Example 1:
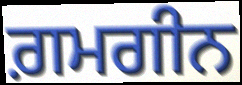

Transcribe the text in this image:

ਗ਼ਮਗੀਨ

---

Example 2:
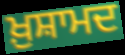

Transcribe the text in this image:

ਖ਼ੁਸ਼ਾਮਦ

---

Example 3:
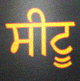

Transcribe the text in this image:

ਸੀਟੂ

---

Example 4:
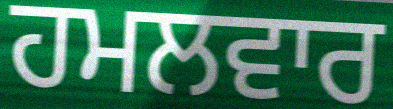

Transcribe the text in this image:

ਹਮਲਵਾਰ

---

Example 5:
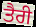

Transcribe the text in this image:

ਤੈਰੀ